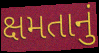
ક્ષમતાનું